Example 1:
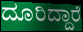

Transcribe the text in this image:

ದೂರಿದ್ದಾರೆ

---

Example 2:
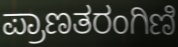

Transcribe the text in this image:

ಪ್ರಾಣತರಂಗಿಣಿ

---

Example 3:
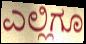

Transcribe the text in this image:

ಎಲ್ಲಿಗೂ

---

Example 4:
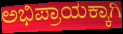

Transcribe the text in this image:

ಅಭಿಪ್ರಾಯಕ್ಕಾಗಿ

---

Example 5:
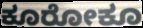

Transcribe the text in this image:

ಕೂರೋಕೂ